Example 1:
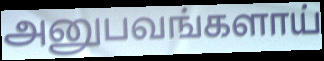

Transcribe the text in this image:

அனுபவங்களாய்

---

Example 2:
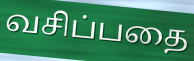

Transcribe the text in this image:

வசிப்பதை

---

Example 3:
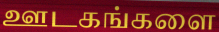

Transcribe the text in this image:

ஊடகங்களை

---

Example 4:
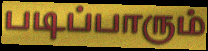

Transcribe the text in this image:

படிப்பாரும்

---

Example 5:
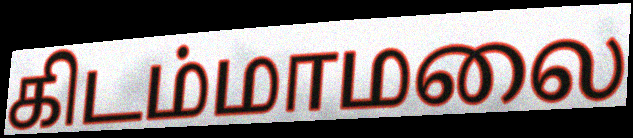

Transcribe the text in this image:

கிடம்மாமலை